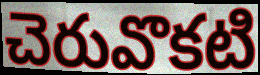
చెరువొకటి